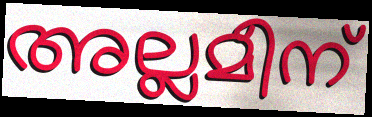
അല്ലമീന്